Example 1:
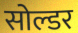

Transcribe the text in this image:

सोल्डर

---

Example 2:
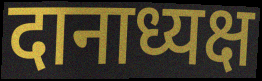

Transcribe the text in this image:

दानाध्यक्ष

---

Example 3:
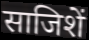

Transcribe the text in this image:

साजिशें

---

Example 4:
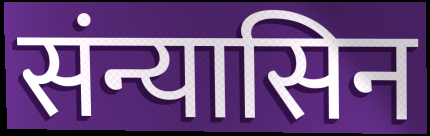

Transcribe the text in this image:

संन्यासिन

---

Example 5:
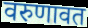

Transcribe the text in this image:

वरुणावत